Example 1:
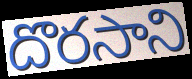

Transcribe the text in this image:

దొరసాని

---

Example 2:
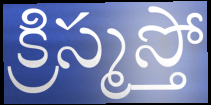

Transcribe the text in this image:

క్రిస్మస్తో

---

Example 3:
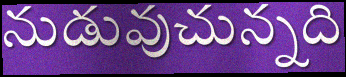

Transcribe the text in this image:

నుడువుచున్నది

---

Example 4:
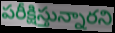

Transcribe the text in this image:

పరీక్షిస్తున్నారని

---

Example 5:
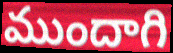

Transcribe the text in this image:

ముందాగి